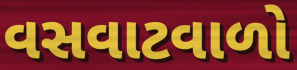
વસવાટવાળો